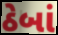
ઠેબાં